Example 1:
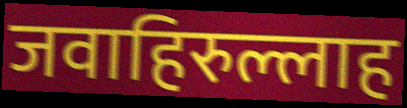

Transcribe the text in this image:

जवाहिरुल्लाह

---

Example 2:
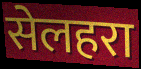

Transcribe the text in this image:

सेलहरा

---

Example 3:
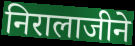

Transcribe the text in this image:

निरालाजीने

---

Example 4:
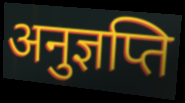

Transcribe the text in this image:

अनुज्ञप्ति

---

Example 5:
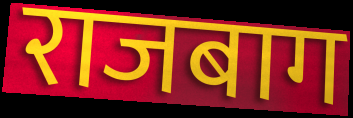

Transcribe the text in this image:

राजबाग